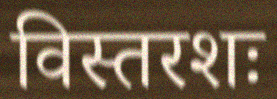
विस्तरशः